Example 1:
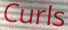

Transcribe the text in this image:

Curls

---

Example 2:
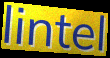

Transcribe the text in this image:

lintel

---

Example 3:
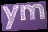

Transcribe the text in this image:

ym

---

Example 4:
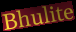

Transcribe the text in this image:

Bhulite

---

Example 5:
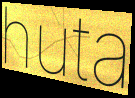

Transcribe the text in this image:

huta